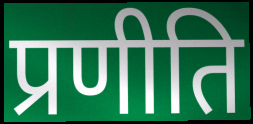
प्रणीति